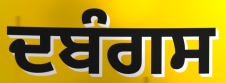
ਦਬੰਗਸ